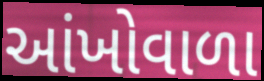
આંખોવાળા